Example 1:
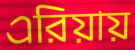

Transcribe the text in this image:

এরিয়ায়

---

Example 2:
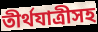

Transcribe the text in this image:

তীর্থযাত্রীসহ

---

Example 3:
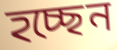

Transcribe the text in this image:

হচ্ছেন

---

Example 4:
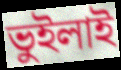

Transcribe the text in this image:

ভুইলাই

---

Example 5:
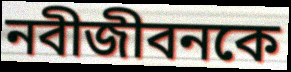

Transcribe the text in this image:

নবীজীবনকে